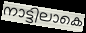
നാട്ടിലാകെ